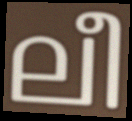
ലീ